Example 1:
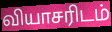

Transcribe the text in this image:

வியாசரிடம்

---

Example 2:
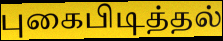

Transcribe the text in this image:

புகைபிடித்தல்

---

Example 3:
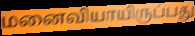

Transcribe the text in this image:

மனைவியாயிருப்பது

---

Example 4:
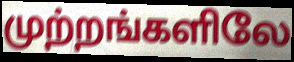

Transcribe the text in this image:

முற்றங்களிலே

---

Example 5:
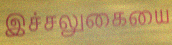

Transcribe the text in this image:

இச்சலுகையை